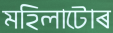
মহিলাটোৰ